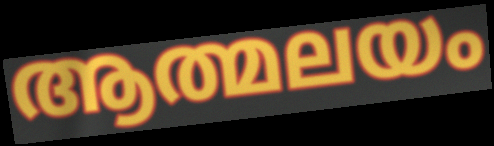
ആത്മലയം